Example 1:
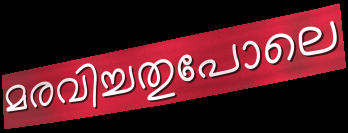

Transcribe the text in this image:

മരവിച്ചതുപോലെ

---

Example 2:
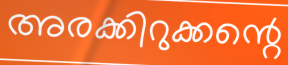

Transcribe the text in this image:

അരക്കിറുക്കന്റെ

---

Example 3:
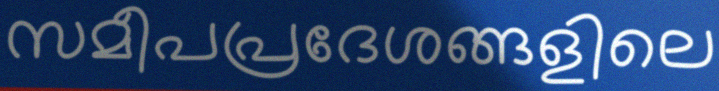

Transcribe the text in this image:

സമീപപ്രദേശങ്ങളിലെ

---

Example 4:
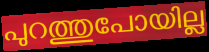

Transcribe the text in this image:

പുറത്തുപോയില്ല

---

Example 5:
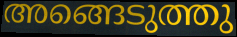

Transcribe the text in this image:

അങ്ങെടുത്തു